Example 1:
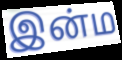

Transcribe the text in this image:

இன்ம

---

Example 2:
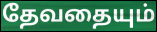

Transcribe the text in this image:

தேவதையும்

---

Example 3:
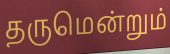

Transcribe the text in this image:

தருமென்றும்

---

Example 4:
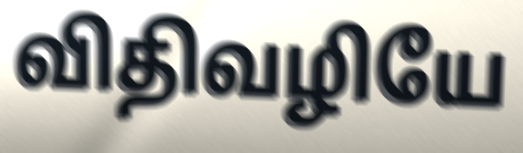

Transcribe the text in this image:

விதிவழியே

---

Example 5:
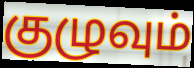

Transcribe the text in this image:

குழுவும்